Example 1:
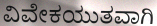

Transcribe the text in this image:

ವಿವೇಕಯುತವಾಗಿ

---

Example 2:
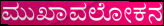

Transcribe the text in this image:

ಮುಖಾವಲೋಕನ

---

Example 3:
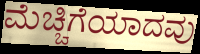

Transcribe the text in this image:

ಮೆಚ್ಚಿಗೆಯಾದವು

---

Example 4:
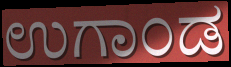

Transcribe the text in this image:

ಉಗಾಂಡ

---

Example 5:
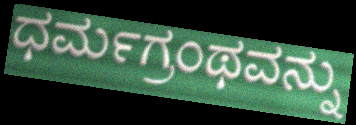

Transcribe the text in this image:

ಧರ್ಮಗ್ರಂಥವನ್ನು